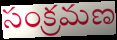
సంక్రమణ